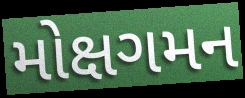
મોક્ષગમન